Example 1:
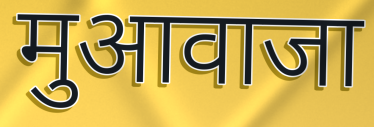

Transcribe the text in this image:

मुआवाजा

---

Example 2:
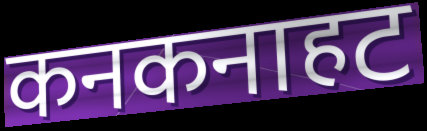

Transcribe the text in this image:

कनकनाहट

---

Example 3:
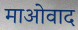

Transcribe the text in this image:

माओवाद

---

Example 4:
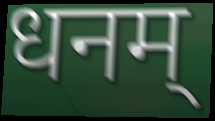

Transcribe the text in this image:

धनम्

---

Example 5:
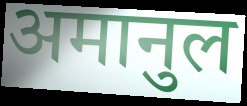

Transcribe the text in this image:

अमानुल